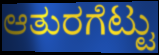
ಆತುರಗೆಟ್ಟು